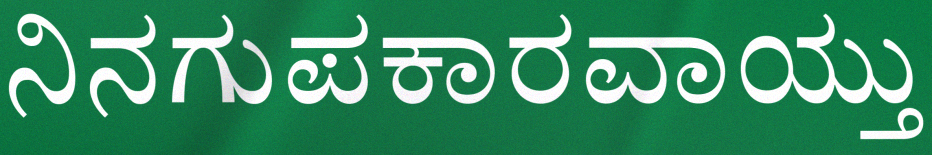
ನಿನಗುಪಕಾರವಾಯ್ತು